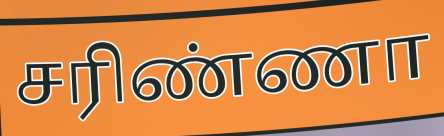
சரிண்ணா